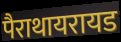
पैराथायरायड